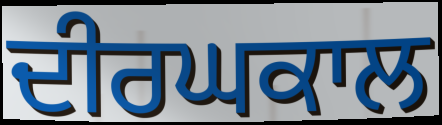
ਦੀਰਘਕਾਲ